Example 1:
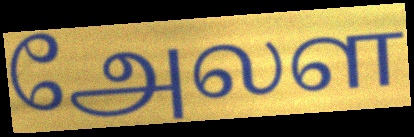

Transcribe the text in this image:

அேலள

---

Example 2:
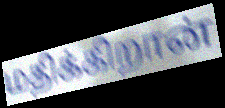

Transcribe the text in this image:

மதிக்கிறான்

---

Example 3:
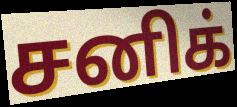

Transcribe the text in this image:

சனிக்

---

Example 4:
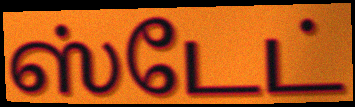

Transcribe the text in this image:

ஸ்டேட்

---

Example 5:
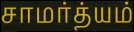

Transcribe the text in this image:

சாமர்த்யம்